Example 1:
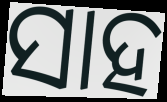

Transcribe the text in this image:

ସାହ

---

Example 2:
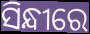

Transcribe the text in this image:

ସିନ୍ଧୀରେ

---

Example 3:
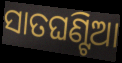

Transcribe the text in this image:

ସାତଘଣ୍ଟିଆ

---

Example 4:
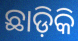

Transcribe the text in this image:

ଛାଡ଼ିକି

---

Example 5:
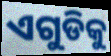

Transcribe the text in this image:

ଏଗୁଡିକୁ